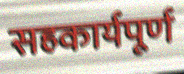
सहकार्यपूर्ण